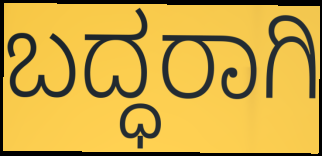
ಬದ್ಧರಾಗಿ